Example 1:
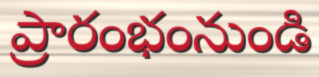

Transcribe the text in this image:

ప్రారంభంనుండి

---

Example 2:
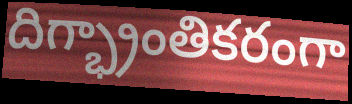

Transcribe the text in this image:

దిగ్భ్రాంతికరంగా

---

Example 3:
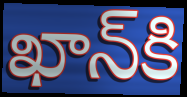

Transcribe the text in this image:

ఖాన్‌కి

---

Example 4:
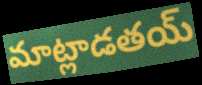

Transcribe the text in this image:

మాట్లాడతయ్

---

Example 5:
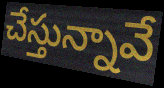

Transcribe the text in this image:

చేస్తున్నావే